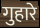
गुहारे